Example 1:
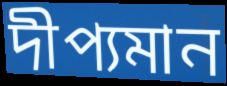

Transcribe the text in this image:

দীপ্যমান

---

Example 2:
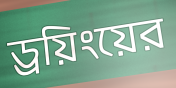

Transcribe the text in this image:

ড্রয়িংয়ের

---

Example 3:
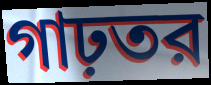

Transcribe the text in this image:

গাঢ়তর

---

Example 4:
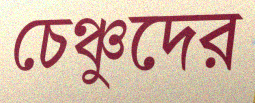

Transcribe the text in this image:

চেঞ্চুদের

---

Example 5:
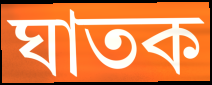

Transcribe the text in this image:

ঘাতক